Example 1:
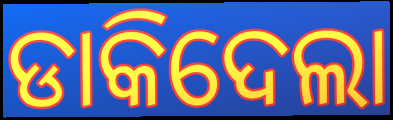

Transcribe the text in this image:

ଡାକିଦେଲା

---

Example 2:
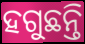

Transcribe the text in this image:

ହଗୁଛନ୍ତି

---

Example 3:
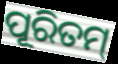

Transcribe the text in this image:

ପୂରିତମ୍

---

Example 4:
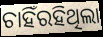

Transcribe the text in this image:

ଚାହିଁରହିଥିଲା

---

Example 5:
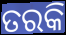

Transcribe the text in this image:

ତରକି